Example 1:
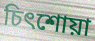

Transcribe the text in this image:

চিৎশোয়া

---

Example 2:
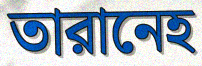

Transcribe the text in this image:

তারানেহ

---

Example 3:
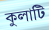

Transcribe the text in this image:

কুলাটি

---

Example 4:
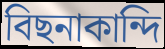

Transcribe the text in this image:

বিছনাকান্দি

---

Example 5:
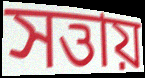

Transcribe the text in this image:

সত্তায়